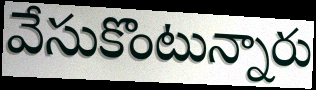
వేసుకొంటున్నారు